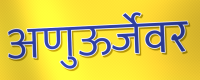
अणुऊर्जेवर